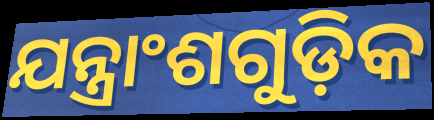
ଯନ୍ତ୍ରାଂଶଗୁଡ଼ିକ